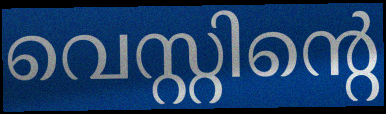
വെസ്റ്റിന്റെ